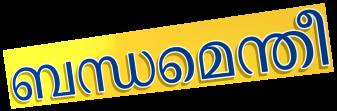
ബന്ധമെന്തീ